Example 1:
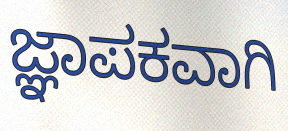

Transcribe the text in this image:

ಜ್ಞಾಪಕವಾಗಿ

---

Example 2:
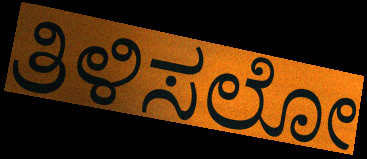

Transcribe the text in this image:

ತಿಳಿಸಲೋ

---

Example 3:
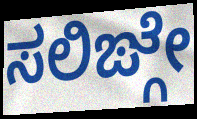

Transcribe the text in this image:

ಸಲಿಙ್ಗೇ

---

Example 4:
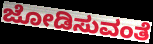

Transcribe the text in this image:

ಜೋಡಿಸುವಂತೆ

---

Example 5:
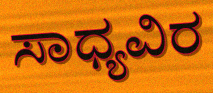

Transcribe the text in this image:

ಸಾಧ್ಯವಿರ